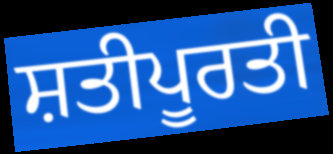
ਸ਼ਤੀਪੂਰਤੀ